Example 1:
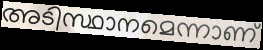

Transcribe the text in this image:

അടിസ്ഥാനമെന്നാണ്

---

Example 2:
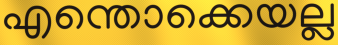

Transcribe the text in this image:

എന്തൊക്കെയല്ല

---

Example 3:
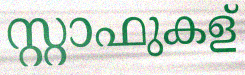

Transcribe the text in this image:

സ്റ്റാഫുകള്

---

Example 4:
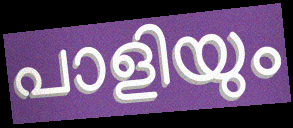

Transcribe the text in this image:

പാളിയും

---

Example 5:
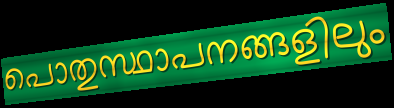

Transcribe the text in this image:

പൊതുസ്ഥാപനങ്ങളിലും